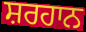
ਸ਼ਰਹਾਨ